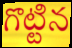
గొట్టిన